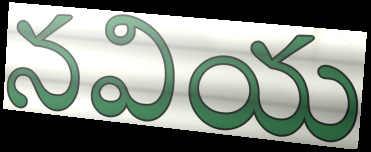
నవియ